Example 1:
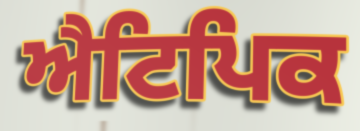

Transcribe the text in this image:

ਐਟਿਪਿਕ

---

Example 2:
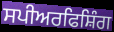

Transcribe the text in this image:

ਸਪੀਅਰਫਿਸ਼ਿੰਗ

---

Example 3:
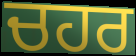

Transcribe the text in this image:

ਚਹਰ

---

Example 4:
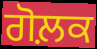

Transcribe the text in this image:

ਗੋਲ਼ਕ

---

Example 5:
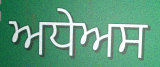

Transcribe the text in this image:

ਅਧੇਅਸ